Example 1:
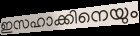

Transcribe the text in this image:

ഇസഹാക്കിനെയും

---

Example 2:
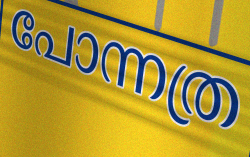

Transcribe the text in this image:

പോന്നത്ര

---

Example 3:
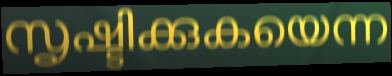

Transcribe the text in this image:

സൃഷ്ടിക്കുകയെന്ന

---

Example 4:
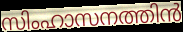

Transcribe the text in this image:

സിംഹാസനത്തിൻ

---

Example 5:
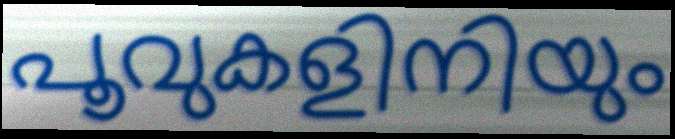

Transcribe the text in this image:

പൂവുകളിനിയും